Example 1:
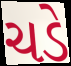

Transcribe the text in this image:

ચડે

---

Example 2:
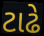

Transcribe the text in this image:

ટાઢે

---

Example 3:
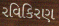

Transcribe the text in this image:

રવિકિરણ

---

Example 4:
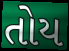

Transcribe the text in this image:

તોય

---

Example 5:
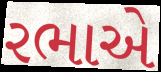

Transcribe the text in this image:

રભાએ